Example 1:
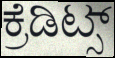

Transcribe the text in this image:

ಕ್ರೆಡಿಟ್ಸ್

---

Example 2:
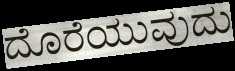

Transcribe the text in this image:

ದೊರೆಯುವುದು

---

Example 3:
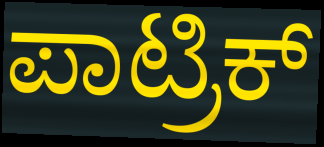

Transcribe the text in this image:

ಪಾಟ್ರಿಕ್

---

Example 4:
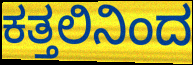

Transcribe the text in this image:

ಕತ್ತಲಿನಿಂದ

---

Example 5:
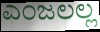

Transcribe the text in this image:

ಎಂಜಲಲ್ಲ